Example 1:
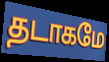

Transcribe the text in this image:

தடாகமே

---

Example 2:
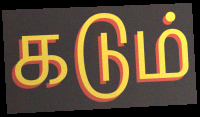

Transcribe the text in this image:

கடும்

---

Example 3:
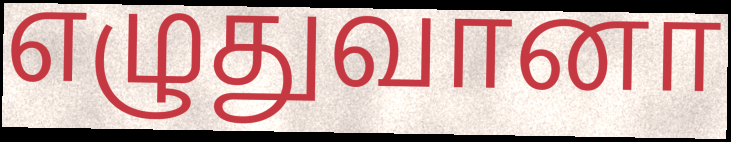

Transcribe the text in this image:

எழுதுவானா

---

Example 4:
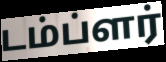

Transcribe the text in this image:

டம்ப்ளர்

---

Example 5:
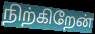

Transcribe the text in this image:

நிற்கிறேன்